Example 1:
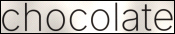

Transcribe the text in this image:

chocolate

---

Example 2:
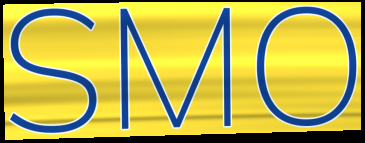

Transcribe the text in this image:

SMO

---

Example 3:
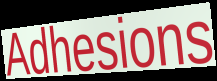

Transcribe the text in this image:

Adhesions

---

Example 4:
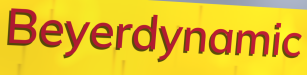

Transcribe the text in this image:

Beyerdynamic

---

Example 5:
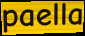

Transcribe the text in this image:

paella